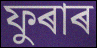
ফুৰাৰ